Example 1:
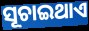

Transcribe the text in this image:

ସୂଚାଇଥାଏ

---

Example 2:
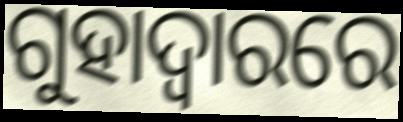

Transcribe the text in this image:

ଗୁହାଦ୍ଵାରରେ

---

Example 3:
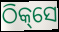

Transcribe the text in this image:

ଠିକ୍‌ସେ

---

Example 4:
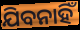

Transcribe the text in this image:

ଯିବନାହିଁ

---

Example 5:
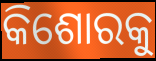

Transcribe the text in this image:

କିଶୋରକୁ